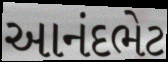
આનંદભેટ